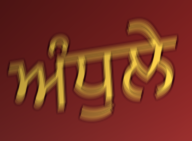
ਅੰਧੁਲੇ